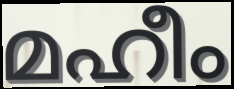
മഹീം